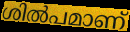
ശിൽപമാണ്